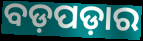
ବଡ଼ପଡ଼ାର